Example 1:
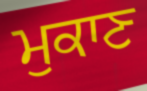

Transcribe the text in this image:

ਮੁਕਾਣ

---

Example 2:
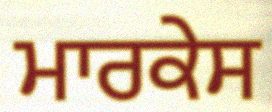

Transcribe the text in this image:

ਮਾਰਕੇਸ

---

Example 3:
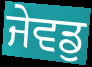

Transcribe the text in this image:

ਜੇਵਡੁ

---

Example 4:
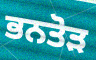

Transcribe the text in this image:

ਭਨਤੋੜ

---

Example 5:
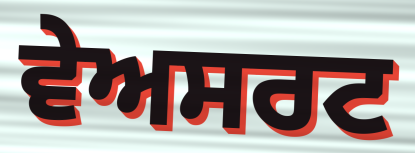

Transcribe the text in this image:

ਵੇਅਸਰਟ